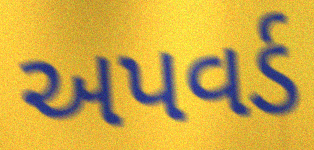
અપવર્ડ